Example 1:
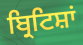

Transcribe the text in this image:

ਬ੍ਰਿਟਿਸ਼ਾਂ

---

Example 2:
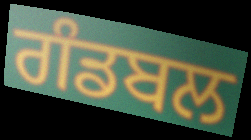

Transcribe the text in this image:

ਗੰਡਬਲ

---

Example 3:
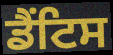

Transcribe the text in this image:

ਡੈਂਟਿਸ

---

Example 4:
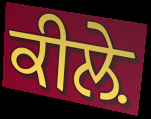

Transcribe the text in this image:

ਕੀਲ਼ੇ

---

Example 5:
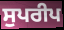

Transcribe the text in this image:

ਸੁਪਰੀਪ